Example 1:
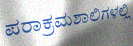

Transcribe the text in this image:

ಪರಾಕ್ರಮಶಾಲಿಗಳಲ್ಲಿ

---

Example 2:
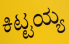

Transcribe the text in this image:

ಕಿಟ್ಟಯ್ಯ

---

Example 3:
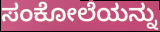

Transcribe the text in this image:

ಸಂಕೋಲೆಯನ್ನು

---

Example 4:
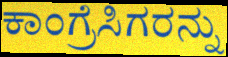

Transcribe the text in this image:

ಕಾಂಗ್ರೆಸಿಗರನ್ನು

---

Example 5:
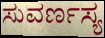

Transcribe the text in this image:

ಸುವರ್ಣಸ್ಯ